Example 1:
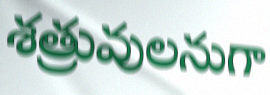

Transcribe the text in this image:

శత్రువులనుగా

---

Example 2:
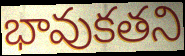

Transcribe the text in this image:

భావుకతని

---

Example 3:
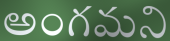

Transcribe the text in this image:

అంగమని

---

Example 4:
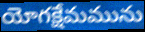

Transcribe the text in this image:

యోగక్షేమమును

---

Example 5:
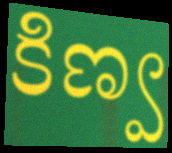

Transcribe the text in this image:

కిణ్వ